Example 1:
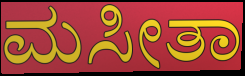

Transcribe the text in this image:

ಮಸೀತಾ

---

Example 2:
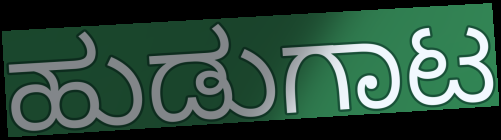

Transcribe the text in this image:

ಹುಡುಗಾಟ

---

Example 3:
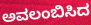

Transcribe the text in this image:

ಅವಲಂಬಿಸಿದ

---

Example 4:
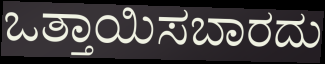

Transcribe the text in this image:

ಒತ್ತಾಯಿಸಬಾರದು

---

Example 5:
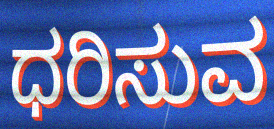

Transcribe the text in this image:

ಧರಿಸುವ